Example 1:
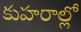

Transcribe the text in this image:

కుహరాల్లో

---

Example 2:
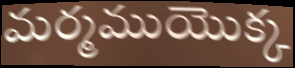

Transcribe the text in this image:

మర్మముయొక్క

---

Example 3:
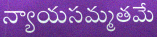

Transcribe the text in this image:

న్యాయసమ్మతమే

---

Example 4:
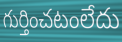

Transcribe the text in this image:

గుర్తించటంలేదు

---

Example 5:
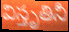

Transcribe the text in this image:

విస్తృతినీ